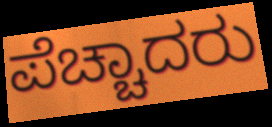
ಪೆಚ್ಚಾದರು